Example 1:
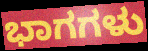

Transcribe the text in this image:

ಭಾಗಗಳು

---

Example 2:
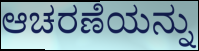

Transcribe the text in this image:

ಆಚರಣೆಯನ್ನು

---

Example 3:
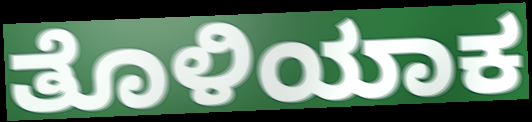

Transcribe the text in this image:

ತೊಳಿಯಾಕ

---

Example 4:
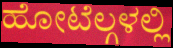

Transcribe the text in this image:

ಹೋಟೆಲ್ಗಳಲ್ಲಿ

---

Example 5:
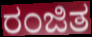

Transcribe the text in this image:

ರಂಜಿತ